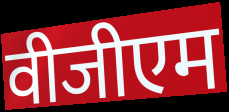
वीजीएम